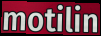
motilin